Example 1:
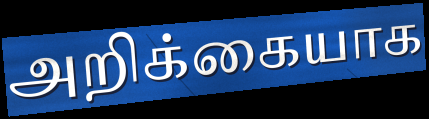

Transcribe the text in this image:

அறிக்கையாக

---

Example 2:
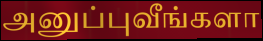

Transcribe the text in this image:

அனுப்புவீங்களா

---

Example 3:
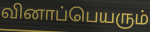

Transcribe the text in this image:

வினாப்பெயரும்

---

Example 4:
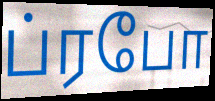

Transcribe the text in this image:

ப்ரபோ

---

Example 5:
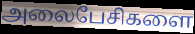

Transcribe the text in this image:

அலைபேசிகளை